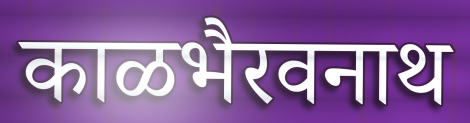
काळभैरवनाथ